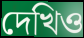
দেখিও